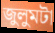
জুলুমটা